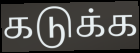
கடுக்க